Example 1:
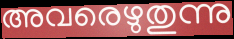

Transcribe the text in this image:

അവരെഴുതുന്നു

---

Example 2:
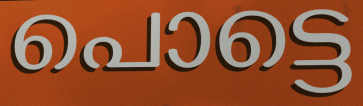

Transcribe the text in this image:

പൊട്ടെ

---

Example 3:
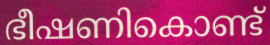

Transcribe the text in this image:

ഭീഷണികൊണ്ട്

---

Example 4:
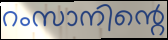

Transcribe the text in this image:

റംസാനിന്റെ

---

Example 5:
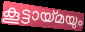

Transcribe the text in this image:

കൂട്ടായ്മയും